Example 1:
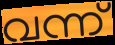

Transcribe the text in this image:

വന്ന്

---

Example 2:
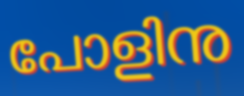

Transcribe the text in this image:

പോളിനു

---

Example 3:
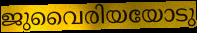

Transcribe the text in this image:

ജുവൈരിയയോടു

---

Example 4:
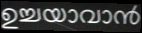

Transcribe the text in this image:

ഉച്ചയാവാൻ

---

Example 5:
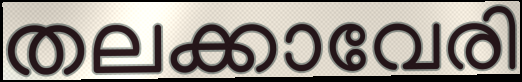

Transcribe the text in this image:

തലക്കാവേരി